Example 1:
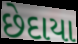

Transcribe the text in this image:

છેદાયા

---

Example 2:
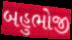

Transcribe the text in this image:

બહુભોજી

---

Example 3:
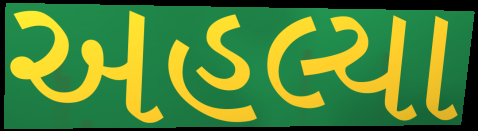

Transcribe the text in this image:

અહલ્યા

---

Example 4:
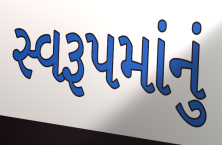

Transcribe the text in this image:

સ્વરૂપમાંનું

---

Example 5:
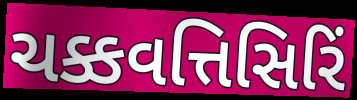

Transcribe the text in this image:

ચક્કવત્તિસિરિં